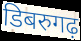
डिबरुगढ़